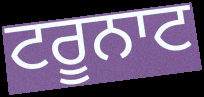
ਟਰੂਨਾਟ